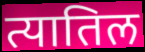
त्यातिल